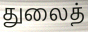
துலைத்